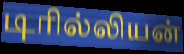
டிரில்லியன்